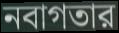
নবাগতার